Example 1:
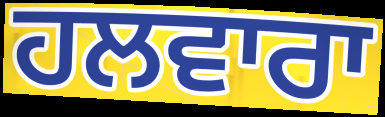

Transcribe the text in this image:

ਹਲਵਾਰਾ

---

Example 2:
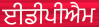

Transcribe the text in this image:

ਈਡੀਪੀਐਮ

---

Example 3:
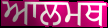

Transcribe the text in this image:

ਆਲਮਥ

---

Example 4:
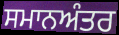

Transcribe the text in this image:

ਸਮਾਨਅੰਤਰ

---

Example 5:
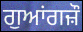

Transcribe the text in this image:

ਗੁਆਂਗਜ਼ੌ